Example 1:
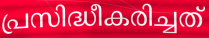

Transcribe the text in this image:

പ്രസിദ്ധീകരിച്ചത്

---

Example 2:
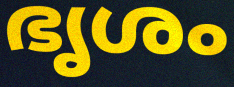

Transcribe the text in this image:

ഭൃശം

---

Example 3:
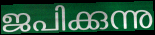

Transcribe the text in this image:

ജപിക്കുന്നു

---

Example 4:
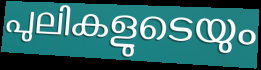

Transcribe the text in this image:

പുലികളുടെയും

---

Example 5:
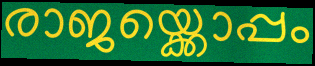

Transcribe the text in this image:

രാജയ്ക്കൊപ്പം